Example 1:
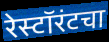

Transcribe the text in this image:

रेस्टॉरंटचा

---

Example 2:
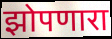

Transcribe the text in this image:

झोपणारा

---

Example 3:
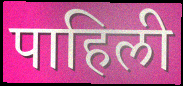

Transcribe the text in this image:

पाहिली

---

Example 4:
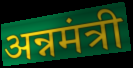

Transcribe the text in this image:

अन्नमंत्री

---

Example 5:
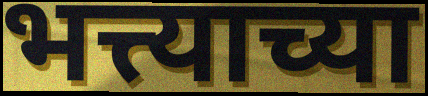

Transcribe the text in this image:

भत्त्याच्या